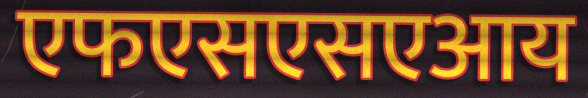
एफएसएसएआय